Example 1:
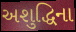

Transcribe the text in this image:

અશુદ્ધિના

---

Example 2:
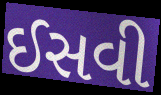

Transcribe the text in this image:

ઈસવી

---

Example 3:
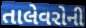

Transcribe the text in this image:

તાલેવરોની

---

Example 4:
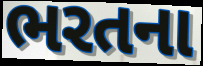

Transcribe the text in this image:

ભરતના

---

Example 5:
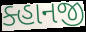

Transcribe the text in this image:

ક્હાનજી